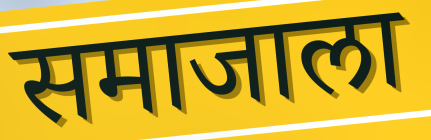
समाजाला